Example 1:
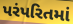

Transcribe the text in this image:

પરંપરિતમાં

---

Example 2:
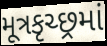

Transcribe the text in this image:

મૂત્રકૃચ્છ્રમાં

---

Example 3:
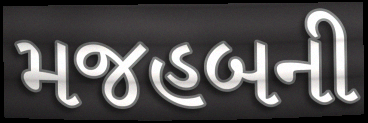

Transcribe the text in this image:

મજહબની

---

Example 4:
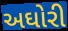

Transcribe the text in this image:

અઘોરી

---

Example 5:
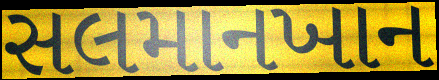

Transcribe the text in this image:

સલમાનખાન